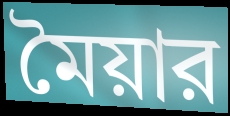
মৈয়ার